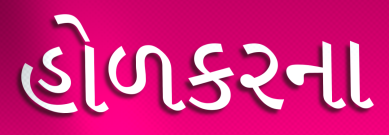
હોળકરના